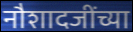
नौशादजींच्या